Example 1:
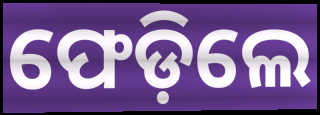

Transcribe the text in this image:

ଫେଡ଼ିଲେ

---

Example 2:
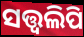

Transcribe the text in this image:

ସତ୍ତ୍ୱଲିପି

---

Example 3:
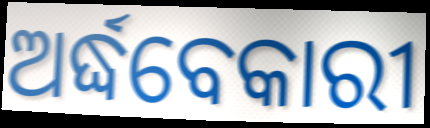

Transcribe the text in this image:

ଅର୍ଦ୍ଧବେକାରୀ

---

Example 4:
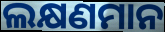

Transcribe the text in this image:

ଲକ୍ଷଣମାନ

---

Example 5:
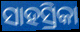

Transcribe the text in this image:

ସାହସ୍ରିକା